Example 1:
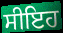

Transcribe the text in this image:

ਸੀਇਹ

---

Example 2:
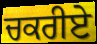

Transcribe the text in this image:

ਚਕਰੀਏ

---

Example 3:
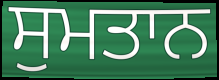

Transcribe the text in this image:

ਸੁਮਤਾਨ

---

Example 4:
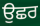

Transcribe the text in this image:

ਉਛਰ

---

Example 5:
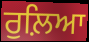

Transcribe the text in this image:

ਰੁਲ਼ਿਆ